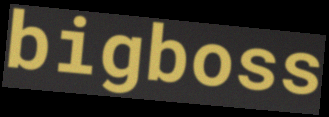
bigboss